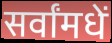
सर्वांमधें